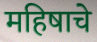
महिषाचे